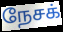
நேசக்